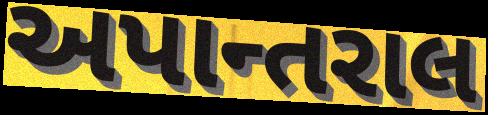
અપાન્તરાલ